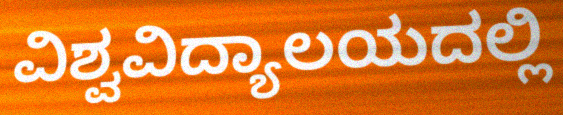
ವಿಶ್ವವಿದ್ಯಾಲಯದಲ್ಲಿ